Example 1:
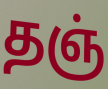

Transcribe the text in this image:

தஞ்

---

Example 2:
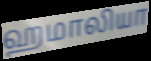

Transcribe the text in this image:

ஹமாலியா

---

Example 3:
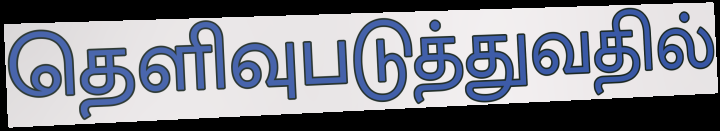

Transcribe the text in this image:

தெளிவுபடுத்துவதில்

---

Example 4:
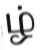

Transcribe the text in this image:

ழ்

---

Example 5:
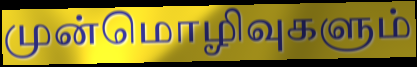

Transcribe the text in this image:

முன்மொழிவுகளும்